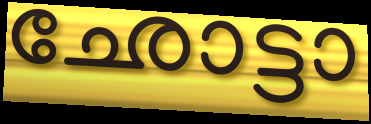
ഛോട്ടാ